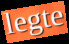
legte